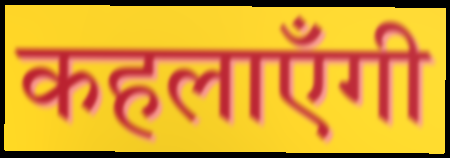
कहलाएँगी